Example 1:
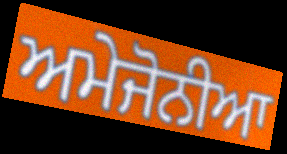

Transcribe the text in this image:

ਅਮੇਜੋਨੀਆ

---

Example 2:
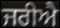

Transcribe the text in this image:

ਜਰੀਐ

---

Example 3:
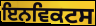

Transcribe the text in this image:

ਇਨਵਿਕਟਸ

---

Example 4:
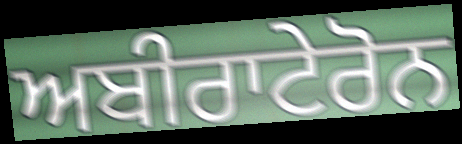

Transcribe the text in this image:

ਅਬੀਰਾਟੇਰੋਨ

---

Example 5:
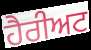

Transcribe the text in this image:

ਹੈਰੀਅਟ